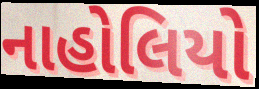
નાહોલિયો